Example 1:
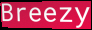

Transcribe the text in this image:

Breezy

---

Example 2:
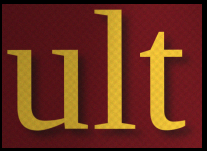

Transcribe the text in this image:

ult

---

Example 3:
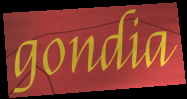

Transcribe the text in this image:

gondia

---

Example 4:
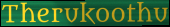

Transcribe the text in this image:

Therukoothu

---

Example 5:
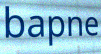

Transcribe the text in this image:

bapne